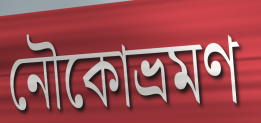
নৌকোভ্রমণ